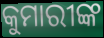
କୁମାରୀଙ୍କ